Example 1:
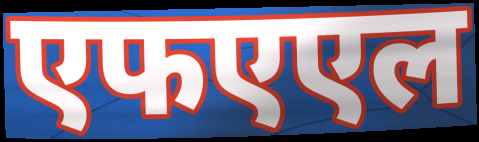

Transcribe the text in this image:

एफएएल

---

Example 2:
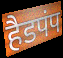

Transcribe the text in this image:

हैडपंप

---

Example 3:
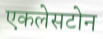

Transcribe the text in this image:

एकलेसटोन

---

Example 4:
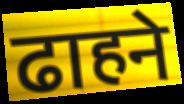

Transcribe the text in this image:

ढाहने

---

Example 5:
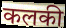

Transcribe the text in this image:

कलकी